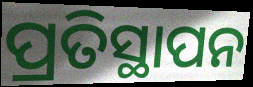
ପ୍ରତିସ୍ଥାପନ